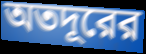
অতদূরের